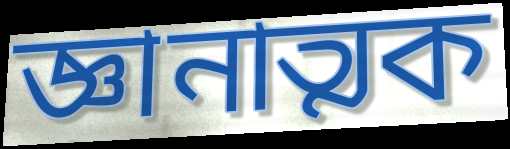
জ্ঞানাত্মক